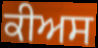
ਕੀਅਸ